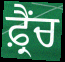
ਫ਼੍ਰੈਂਚ